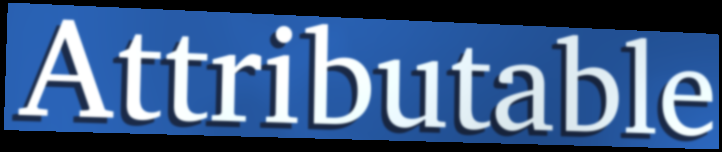
Attributable